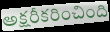
అక్షరీకరించింది